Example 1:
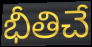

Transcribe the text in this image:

భీతిచే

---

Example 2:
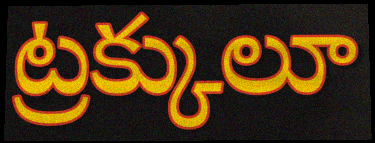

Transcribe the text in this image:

ట్రక్కులూ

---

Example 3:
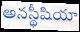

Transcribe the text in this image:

అనస్థీషియా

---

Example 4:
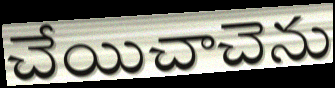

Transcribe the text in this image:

చేయిచాచెను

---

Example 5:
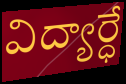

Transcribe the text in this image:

విద్యార్ధే